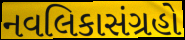
નવલિકાસંગ્રહો